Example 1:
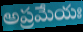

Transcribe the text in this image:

అప్రమేయః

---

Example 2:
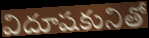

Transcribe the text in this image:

విదూషకునితో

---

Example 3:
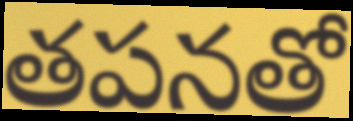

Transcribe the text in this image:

తపనతో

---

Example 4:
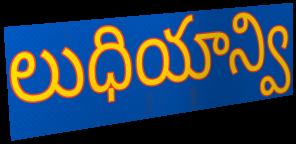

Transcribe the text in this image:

లుధియాన్వి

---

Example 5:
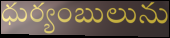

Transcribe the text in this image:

ధుర్యంబులును